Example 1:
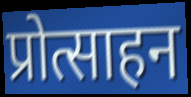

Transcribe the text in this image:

प्रोत्साहन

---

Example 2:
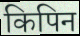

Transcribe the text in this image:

किपिन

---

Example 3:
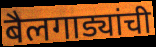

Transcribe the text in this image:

बैलगाड्यांची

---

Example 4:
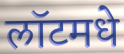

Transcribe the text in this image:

लॉटमधे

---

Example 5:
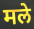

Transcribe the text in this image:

मले